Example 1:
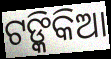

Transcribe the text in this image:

ଟଙ୍କିକିଆ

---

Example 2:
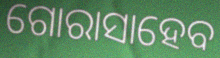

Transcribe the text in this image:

ଗୋରାସାହେବ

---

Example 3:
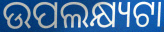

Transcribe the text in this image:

ଉପଲକ୍ଷ୍ୟଟା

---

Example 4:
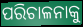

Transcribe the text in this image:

ପରିଚାଳନାକୁ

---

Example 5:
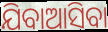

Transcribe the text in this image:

ଯିବାଆସିବା